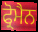
ਫ੍ਰੋਮੈਨ